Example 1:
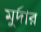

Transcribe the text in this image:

মুর্দার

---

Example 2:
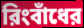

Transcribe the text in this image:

রিংবাঁধের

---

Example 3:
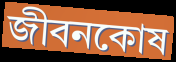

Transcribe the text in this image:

জীবনকোষ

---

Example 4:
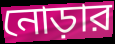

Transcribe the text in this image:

নোড়ার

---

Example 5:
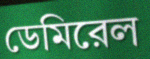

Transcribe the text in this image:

ডেমিরেল